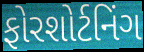
ફોરશોર્ટનિંગ